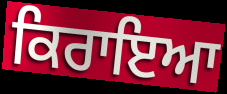
ਕਿਰਾਇਆ